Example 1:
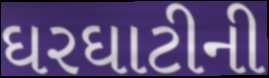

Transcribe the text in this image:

ઘરઘાટીની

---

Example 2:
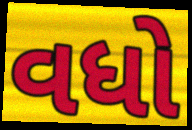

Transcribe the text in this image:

વધો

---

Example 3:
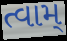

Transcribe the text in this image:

ત્વામ્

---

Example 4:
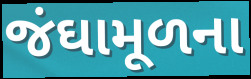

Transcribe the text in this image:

જંઘામૂળના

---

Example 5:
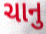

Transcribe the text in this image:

ચાનુ